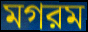
মগরম